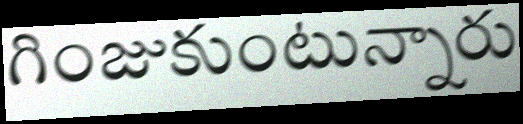
గింజుకుంటున్నారు